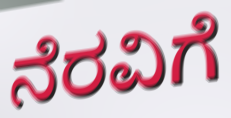
ನೆರವಿಗೆ